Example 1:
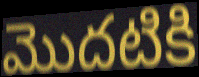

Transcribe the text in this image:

మొదటికి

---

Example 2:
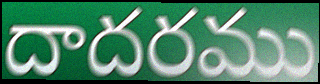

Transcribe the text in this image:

దాదరము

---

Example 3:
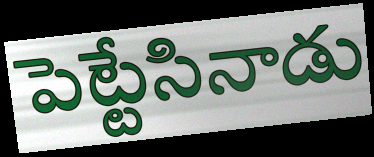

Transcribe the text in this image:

పెట్టేసినాడు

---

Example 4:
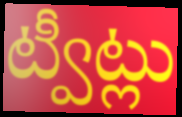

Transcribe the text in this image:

ట్వీట్లు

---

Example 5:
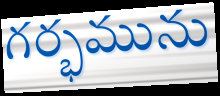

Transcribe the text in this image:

గర్భమును